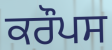
ਕਰੌਪਸ